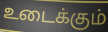
உடைக்கும்